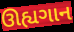
ઊહ્યગાન